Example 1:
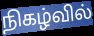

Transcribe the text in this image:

நிகழ்வில்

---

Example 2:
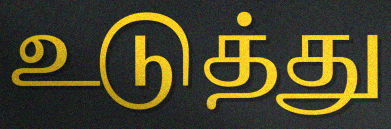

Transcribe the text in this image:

உடுத்து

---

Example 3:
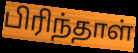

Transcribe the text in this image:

பிரிந்தாள்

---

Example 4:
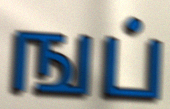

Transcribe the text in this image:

ஙப்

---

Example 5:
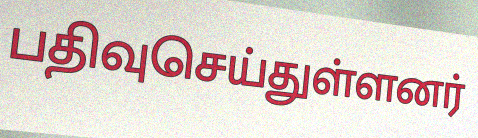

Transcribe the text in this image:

பதிவுசெய்துள்ளனர்